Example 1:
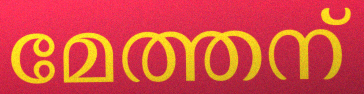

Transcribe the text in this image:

മേത്തന്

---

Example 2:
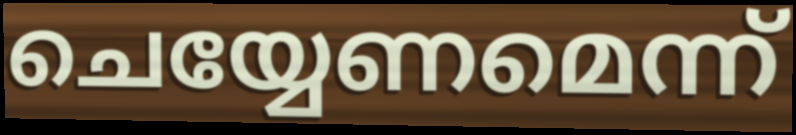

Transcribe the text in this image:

ചെയ്യേണമെന്ന്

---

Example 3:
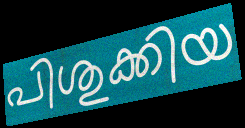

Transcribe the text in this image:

പിശുക്കിയ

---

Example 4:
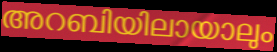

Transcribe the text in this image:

അറബിയിലായാലും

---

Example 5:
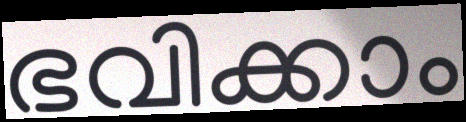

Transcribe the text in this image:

ഭവിക്കാം